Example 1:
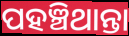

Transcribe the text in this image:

ପହଞ୍ଚିଥାନ୍ତା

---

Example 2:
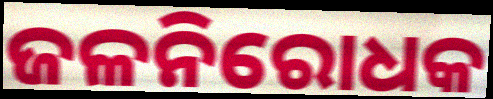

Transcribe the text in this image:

ଜଳନିରୋଧକ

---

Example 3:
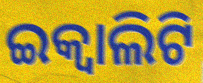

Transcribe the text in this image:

ଇକ୍ୱାଲିଟି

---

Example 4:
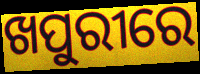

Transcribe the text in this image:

ଖପୁରୀରେ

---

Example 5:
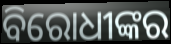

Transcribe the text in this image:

ବିରୋଧୀଙ୍କର